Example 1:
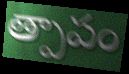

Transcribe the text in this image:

త్పాపం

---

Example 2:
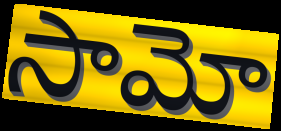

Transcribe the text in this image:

సామో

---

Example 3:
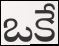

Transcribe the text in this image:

ఒకే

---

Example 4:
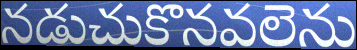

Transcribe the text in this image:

నడుచుకొనవలెను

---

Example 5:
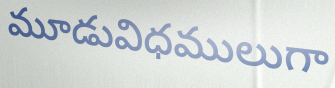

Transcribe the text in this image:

మూడువిధములుగా